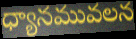
ధ్యానమువలన